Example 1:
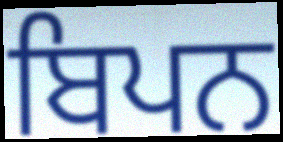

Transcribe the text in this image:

ਬਿਪਨ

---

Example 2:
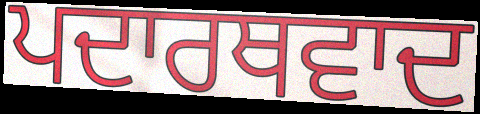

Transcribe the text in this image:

ਪਦਾਰਥਵਾਦ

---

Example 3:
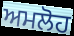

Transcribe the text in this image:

ਅਮਲੋਹ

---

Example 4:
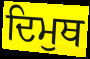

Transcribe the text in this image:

ਦਿਮੁਥ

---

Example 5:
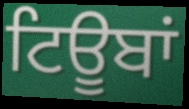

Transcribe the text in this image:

ਟਿਊਬਾਂ